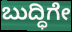
ಬುದ್ಧಿಗೇ